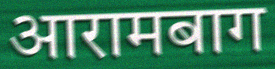
आरामबाग